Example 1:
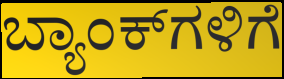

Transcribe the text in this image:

ಬ್ಯಾಂಕ್‌ಗಳಿಗೆ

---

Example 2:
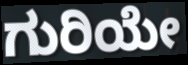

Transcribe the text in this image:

ಗುರಿಯೇ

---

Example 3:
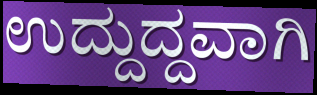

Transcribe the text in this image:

ಉದ್ದುದ್ದವಾಗಿ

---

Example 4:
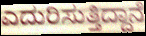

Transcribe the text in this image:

ಎದುರಿಸುತ್ತಿದ್ದಾನೆ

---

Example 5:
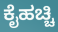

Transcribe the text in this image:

ಕೈಹಚ್ಚಿ